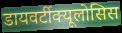
डायवर्टीक्यूलोसिस